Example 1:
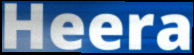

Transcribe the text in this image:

Heera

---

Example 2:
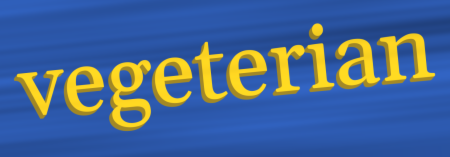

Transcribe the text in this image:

vegeterian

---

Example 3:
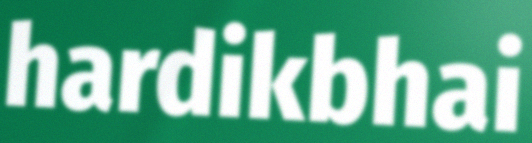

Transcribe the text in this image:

hardikbhai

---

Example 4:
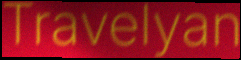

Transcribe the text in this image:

Travelyan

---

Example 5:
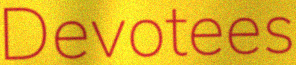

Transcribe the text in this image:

Devotees